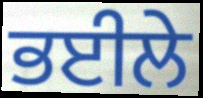
ਭਈਲੇ